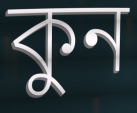
কুন